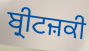
ਬ੍ਰੀਟਜ਼ਕੀ